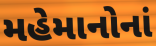
મહેમાનોનાં